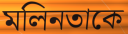
মলিনতাকে